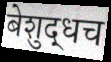
बेशुद्धच